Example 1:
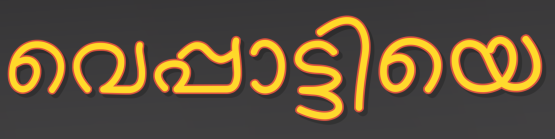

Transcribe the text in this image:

വെപ്പാട്ടിയെ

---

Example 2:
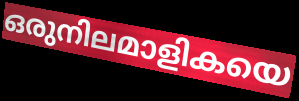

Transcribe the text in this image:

ഒരുനിലമാളികയെ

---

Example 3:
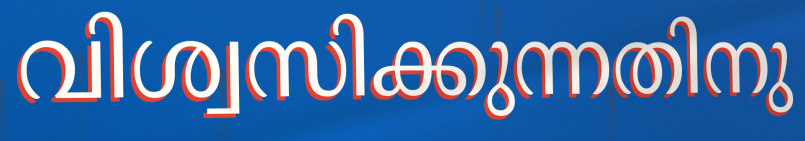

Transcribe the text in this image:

വിശ്വസിക്കുന്നതിനു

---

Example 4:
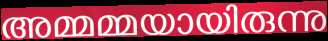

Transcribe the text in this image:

അമ്മമ്മയായിരുന്നു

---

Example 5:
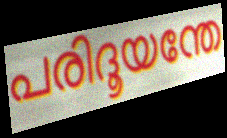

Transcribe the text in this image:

പരിദൂയന്തേ